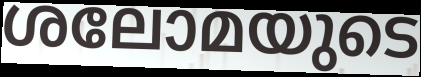
ശലോമയുടെ